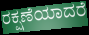
ರಕ್ಷಣೆಯಾದರೆ